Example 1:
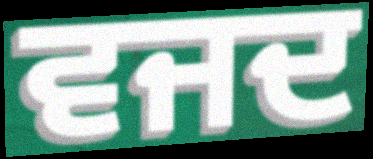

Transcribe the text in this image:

ਵਜਦ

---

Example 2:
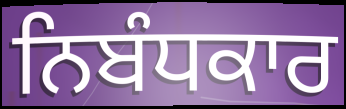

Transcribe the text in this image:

ਨਿਬੰਧਕਾਰ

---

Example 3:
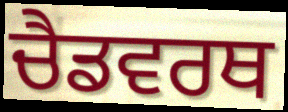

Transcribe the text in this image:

ਚੈਡਵਰਥ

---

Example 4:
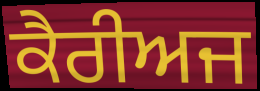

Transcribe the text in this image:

ਕੈਰੀਅਜ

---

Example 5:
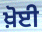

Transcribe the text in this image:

ਖ਼ੋਈ